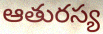
ఆతురస్య